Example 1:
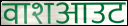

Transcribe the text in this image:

वाशआउट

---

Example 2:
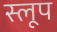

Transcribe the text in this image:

स्लूप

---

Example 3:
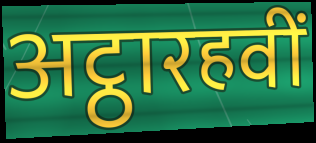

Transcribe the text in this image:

अट्ठारहवीं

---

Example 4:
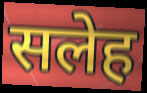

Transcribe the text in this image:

सलेह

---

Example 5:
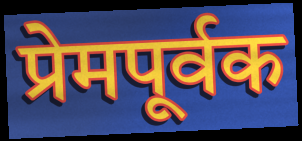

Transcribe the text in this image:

प्रेमपूर्वक